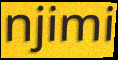
njimi